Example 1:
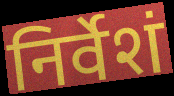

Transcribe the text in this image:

निर्वेशं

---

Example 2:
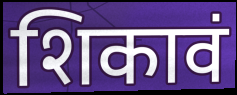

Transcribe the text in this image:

शिकावं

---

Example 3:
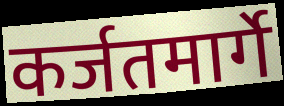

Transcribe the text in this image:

कर्जतमार्गे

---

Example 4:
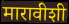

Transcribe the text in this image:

मारावीशी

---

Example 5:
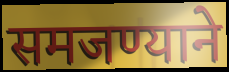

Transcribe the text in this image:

समजण्याने